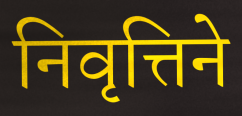
निवृत्तिने